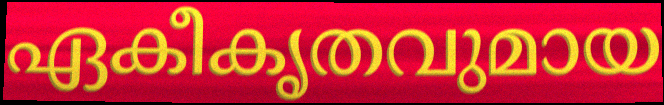
ഏകീകൃതവുമായ